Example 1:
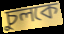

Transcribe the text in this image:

চুলকে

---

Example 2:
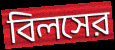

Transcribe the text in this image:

বিলসের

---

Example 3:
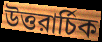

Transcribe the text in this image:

উত্তরার্চিক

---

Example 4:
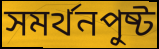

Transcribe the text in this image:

সমর্থনপুষ্ট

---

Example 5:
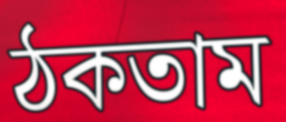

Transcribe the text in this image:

ঠকতাম